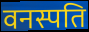
वनस्‍पति